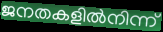
ജനതകളിൽനിന്ന്